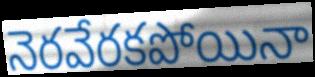
నెరవేరకపోయినా